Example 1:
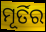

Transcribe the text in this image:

ମୂର୍ତିର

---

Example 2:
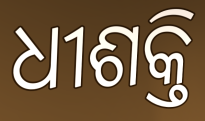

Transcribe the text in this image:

ଧୀଶକ୍ତି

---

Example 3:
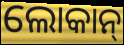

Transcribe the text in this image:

ଲୋକାନ୍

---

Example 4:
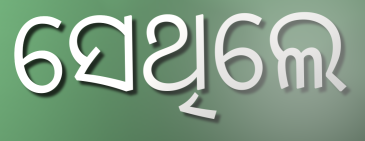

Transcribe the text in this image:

ସେଥିଲେ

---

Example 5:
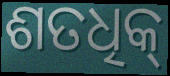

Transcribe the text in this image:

ଶତଧିକ୍